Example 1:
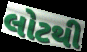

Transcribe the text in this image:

લોટથી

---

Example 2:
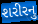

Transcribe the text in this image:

શરીરનુ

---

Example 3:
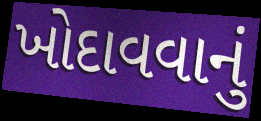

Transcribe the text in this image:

ખોદાવવાનું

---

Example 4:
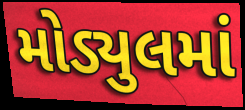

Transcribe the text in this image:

મોડ્યુલમાં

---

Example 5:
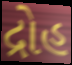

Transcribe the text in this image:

દ્રોહ